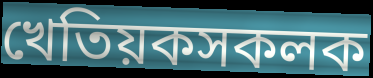
খেতিয়কসকলক